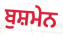
ਬੁਸ਼ਮੇਨ